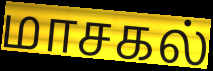
மாசகல்